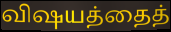
விஷயத்தைத்